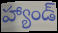
హ్యాండ్